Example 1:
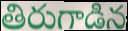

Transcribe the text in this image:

తిరుగాడిన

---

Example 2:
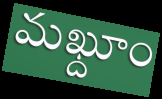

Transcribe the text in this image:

మఖ్దూం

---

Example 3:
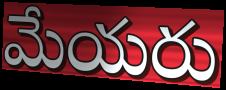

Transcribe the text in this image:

మేయరు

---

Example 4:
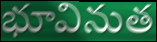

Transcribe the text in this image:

భూవినుత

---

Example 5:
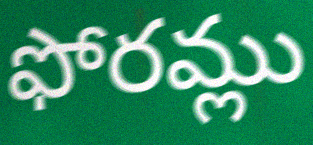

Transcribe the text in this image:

ఫోరమ్లు